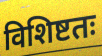
विशिष्टतः